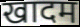
खादम